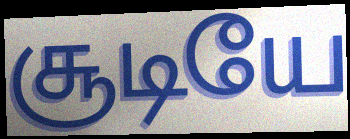
சூடியே